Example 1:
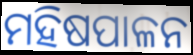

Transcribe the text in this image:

ମହିଷପାଳନ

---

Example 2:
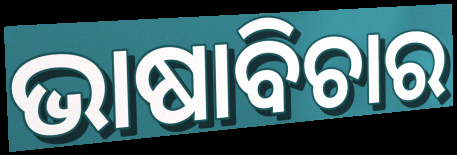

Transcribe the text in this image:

ଭାଷାବିଚାର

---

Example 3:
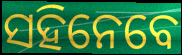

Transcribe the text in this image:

ସହିନେବେ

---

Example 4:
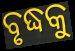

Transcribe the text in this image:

ବୃଦ୍ଧକୁ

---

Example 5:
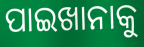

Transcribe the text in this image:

ପାଇଖାନାକୁ